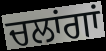
ਚਲਾਂਗਾਂ